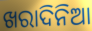
ଖରାଦିନିଆ